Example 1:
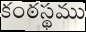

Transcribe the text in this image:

కంఠస్థము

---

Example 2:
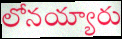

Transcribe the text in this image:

లోనయ్యారు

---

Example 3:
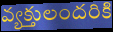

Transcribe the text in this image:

వ్యక్తులందరికి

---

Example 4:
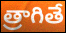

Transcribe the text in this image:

త్రాగితే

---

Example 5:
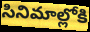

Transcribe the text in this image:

సినిమాల్లోకి